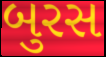
બુરસ